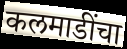
कलमाडींचा